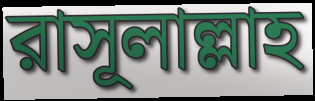
রাসূলাল্লাহ